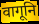
वागूनि